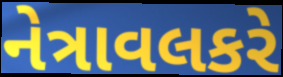
નેત્રાવલકરે